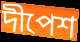
দীপেশ